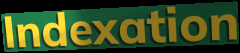
Indexation